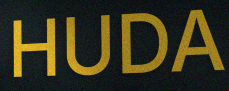
HUDA